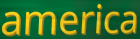
america